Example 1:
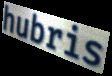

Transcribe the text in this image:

hubris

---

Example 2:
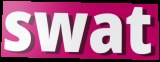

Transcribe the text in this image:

swat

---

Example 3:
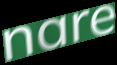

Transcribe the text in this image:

nare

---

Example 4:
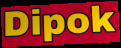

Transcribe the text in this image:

Dipok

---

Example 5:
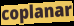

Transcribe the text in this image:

coplanar